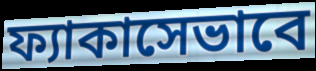
ফ্যাকাসেভাবে